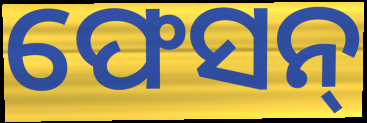
ଫେସନ୍